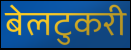
बेलटुकरी